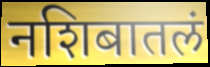
नशिबातलं